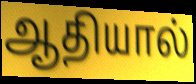
ஆதியால்